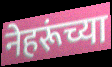
नेहरूंच्या